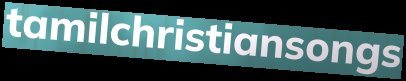
tamilchristiansongs